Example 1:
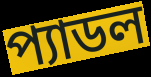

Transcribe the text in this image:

প্যাডল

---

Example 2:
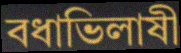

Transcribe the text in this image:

বধাভিলাষী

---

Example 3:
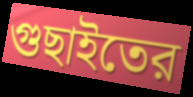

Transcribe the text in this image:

গুছাইতের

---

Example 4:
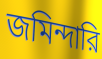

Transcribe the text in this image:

জমিন্দারি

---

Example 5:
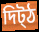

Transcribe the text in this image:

দিট্ঠ